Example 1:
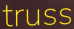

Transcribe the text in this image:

truss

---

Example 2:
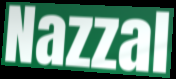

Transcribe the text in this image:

Nazzal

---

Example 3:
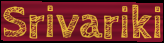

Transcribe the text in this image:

Srivariki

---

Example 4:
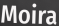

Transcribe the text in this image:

Moira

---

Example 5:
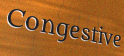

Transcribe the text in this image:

Congestive